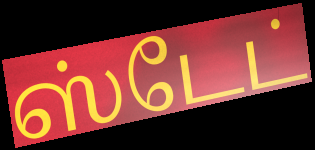
ஸ்டேட்